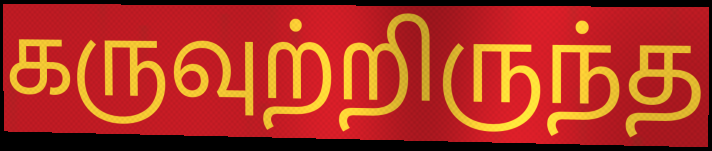
கருவுற்றிருந்த